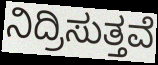
ನಿದ್ರಿಸುತ್ತವೆ